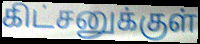
கிட்சனுக்குள்